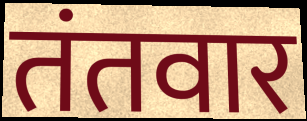
तंतवार